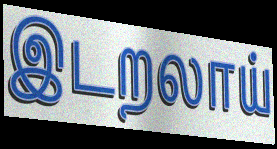
இடறலாய்